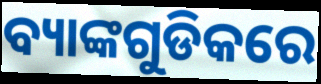
ବ୍ୟାଙ୍କଗୁଡିକରେ